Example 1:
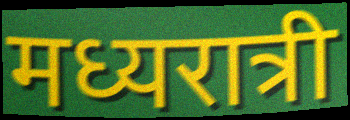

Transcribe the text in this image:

मध्यरात्री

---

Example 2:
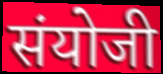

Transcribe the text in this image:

संयोजी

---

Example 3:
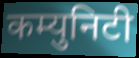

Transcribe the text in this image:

कम्युनिटी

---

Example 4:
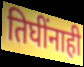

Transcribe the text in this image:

तिघींनाही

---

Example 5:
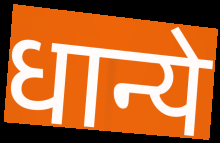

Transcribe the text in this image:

धान्ये